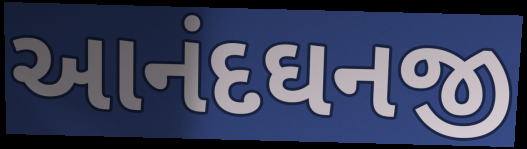
આનંદઘનજી